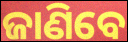
ଜାଣିବେ